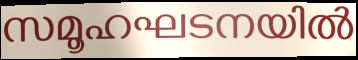
സമൂഹഘടനയിൽ